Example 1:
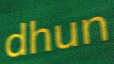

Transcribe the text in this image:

dhun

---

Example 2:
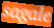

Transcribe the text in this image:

sagale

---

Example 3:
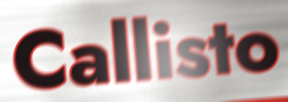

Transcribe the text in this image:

Callisto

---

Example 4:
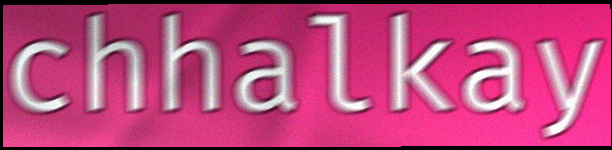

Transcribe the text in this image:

chhalkay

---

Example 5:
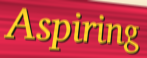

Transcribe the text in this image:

Aspiring